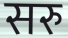
सरु